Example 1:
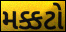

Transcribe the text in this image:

મક્કટો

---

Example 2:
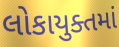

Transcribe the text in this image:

લોકાયુક્તમાં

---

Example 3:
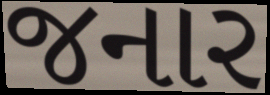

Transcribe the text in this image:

જનાર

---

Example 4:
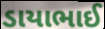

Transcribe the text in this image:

ડાયાભાઈ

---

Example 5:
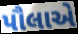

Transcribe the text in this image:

પૌલાએ